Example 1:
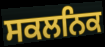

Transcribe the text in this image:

ਸਕਲਨਿਕ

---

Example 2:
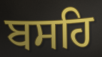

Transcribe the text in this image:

ਬਸਹਿ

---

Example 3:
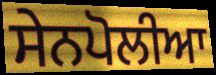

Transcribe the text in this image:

ਸੇਨਪੋਲੀਆ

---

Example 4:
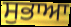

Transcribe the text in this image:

ਸੁਭਾਆ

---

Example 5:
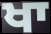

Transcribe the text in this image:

ਖਾ